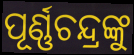
ପୂର୍ଣ୍ଣଚନ୍ଦ୍ରଙ୍କୁ